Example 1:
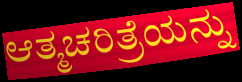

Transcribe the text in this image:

ಆತ್ಮಚರಿತ್ರೆಯನ್ನು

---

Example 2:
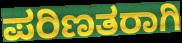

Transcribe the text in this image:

ಪರಿಣತರಾಗಿ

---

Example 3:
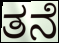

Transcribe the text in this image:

ತನೆ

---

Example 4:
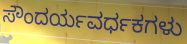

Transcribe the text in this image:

ಸೌಂದರ್ಯವರ್ಧಕಗಳು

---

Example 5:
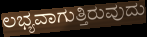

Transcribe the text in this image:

ಲಭ್ಯವಾಗುತ್ತಿರುವುದು